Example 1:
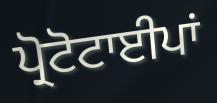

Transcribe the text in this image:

ਪ੍ਰੋਟੋਟਾਈਪਾਂ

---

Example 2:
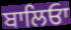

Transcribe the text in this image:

ਬਾਲਿਓਾ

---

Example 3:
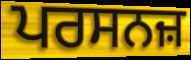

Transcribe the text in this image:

ਪਰਸਨਜ਼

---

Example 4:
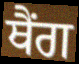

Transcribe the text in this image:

ਥੈਂਗ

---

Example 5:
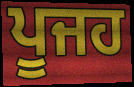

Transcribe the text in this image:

ਪੂਜਹ